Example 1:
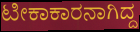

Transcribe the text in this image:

ಟೀಕಾಕಾರನಾಗಿದ್ದ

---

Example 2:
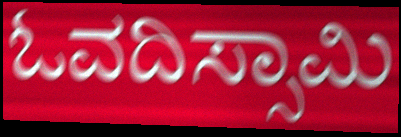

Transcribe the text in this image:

ಓವದಿಸ್ಸಾಮಿ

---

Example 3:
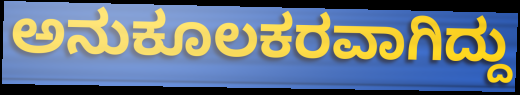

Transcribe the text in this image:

ಅನುಕೂಲಕರವಾಗಿದ್ದು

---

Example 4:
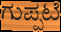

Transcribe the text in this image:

ಗುಪ್ಪಟೆ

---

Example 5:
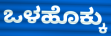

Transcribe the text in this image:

ಒಳಹೊಕ್ಕು